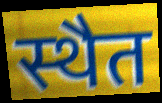
स्थैत